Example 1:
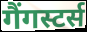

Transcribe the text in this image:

गैंगस्टर्स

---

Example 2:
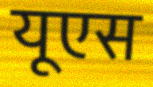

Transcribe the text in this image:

यूएस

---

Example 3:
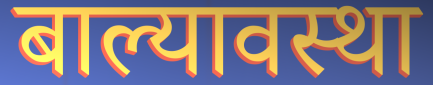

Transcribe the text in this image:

बाल्यावस्था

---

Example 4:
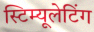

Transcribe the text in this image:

स्टिम्यूलेटिंग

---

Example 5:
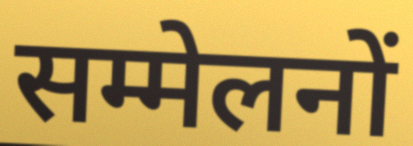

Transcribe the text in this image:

सम्मेलनों